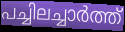
പച്ചിലച്ചാർത്ത്